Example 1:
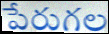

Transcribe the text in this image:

పేరుగల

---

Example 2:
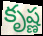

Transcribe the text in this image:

కృష్ణ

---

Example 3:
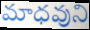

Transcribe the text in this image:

మాధవుని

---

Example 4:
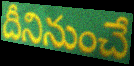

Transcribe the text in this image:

దీనినుంచే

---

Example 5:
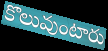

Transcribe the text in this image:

కొలువుంటారు